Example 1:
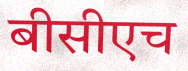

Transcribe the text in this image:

बीसीएच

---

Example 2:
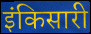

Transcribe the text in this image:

इंकिसारी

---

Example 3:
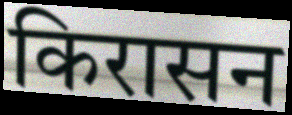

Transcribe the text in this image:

किरासन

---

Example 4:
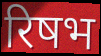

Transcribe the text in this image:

रिषभ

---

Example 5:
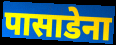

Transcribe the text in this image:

पासाडेना